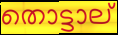
തൊട്ടാല്